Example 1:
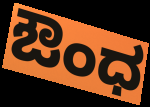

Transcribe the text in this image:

ಔಂಧ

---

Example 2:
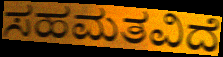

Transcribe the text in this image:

ಸಹಮತವಿದೆ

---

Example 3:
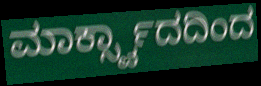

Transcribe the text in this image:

ಮಾರ್ಕ್ಸ್ವಾದದಿಂದ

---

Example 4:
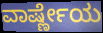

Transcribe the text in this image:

ವಾರ್ಷ್ಣೇಯ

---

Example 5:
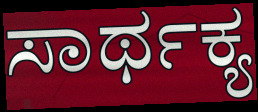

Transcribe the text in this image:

ಸಾರ್ಥಕ್ಯ